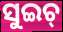
ସୁଇଚ୍